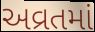
અવ્રતમાં